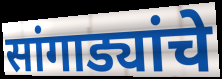
सांगाड्यांचे